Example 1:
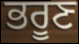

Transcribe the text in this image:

ਭਰੂਣ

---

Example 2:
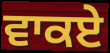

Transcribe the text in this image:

ਵਾਕਏ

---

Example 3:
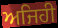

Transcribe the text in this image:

ਅਜਿਹੀ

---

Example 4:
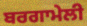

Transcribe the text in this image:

ਬਰਗਾਮੇਲੀ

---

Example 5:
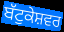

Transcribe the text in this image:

ਬੱਟੁਕੇਸ਼ਵਰ